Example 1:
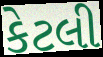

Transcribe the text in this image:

કેટલી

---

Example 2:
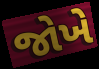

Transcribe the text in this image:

જોખે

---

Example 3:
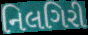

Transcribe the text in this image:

નિલગિરી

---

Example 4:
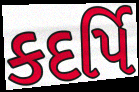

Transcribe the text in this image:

કદર્પિ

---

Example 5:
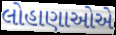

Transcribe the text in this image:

લોહાણાઓએ